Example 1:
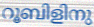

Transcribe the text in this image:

റൂബിളിനു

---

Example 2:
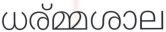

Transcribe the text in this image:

ധര്മ്മശാല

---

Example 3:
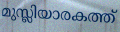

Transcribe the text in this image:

മുസ്ലിയാരകത്ത്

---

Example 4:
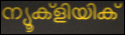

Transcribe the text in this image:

ന്യൂക്ളിയിക്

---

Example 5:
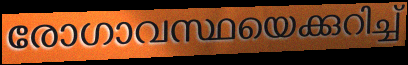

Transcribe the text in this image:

രോഗാവസ്ഥയെക്കുറിച്ച്